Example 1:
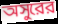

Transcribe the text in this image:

অসুরের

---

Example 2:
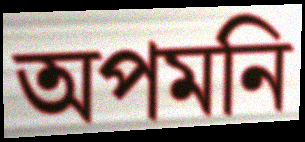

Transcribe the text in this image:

অপমনি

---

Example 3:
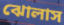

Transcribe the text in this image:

ঝোলাস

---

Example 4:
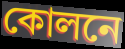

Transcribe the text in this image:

কোলনে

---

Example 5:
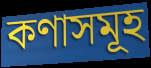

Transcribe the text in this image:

কণাসমূহ